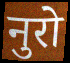
नुरो